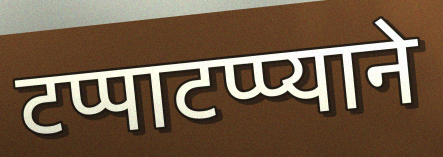
टप्पाटप्प्याने